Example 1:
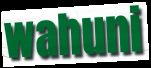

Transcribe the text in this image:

wahuni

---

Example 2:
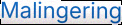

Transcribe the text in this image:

Malingering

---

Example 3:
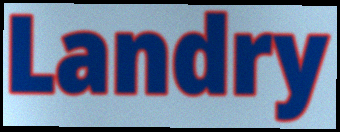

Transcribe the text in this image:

Landry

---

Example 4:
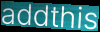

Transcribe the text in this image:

addthis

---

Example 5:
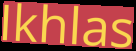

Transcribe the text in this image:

Ikhlas